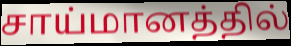
சாய்மானத்தில்